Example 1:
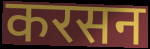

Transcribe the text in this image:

करसन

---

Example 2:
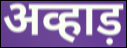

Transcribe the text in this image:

अव्हाड़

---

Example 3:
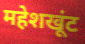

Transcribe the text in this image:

महेशखूंट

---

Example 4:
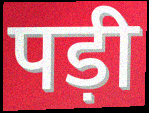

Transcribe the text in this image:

पड़ी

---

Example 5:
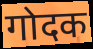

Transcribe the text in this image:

गोदक